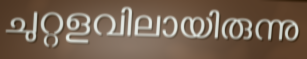
ചുറ്റളവിലായിരുന്നു